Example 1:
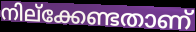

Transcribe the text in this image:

നില്ക്കേണ്ടതാണ്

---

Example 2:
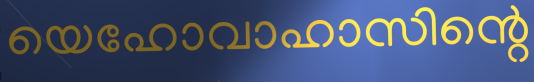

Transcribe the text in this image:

യെഹോവാഹാസിന്റെ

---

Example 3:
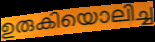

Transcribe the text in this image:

ഉരുകിയൊലിച്ച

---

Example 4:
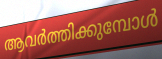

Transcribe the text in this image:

ആവർത്തിക്കുമ്പോൾ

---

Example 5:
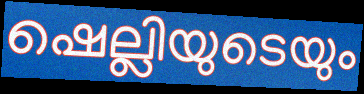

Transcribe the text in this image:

ഷെല്ലിയുടെയും